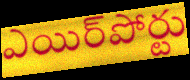
ఎయిర్‌పోర్టు